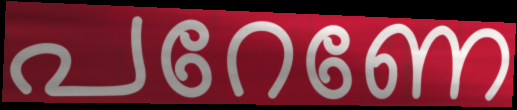
പറേണേ